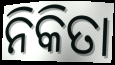
ନିକିତା